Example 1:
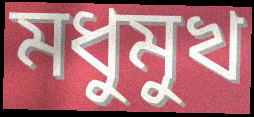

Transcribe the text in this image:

মধুমুখ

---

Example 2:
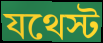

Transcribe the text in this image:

যথেস্ট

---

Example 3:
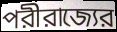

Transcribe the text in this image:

পরীরাজ্যের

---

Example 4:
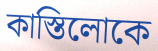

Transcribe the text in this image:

কাস্তিলোকে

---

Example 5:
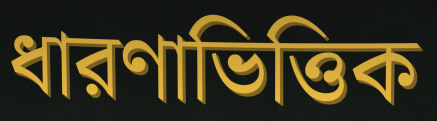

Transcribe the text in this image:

ধারণাভিত্তিক